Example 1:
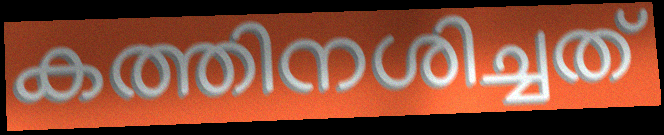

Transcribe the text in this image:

കത്തിനശിച്ചത്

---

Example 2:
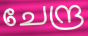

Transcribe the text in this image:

ചേന്ദ്ര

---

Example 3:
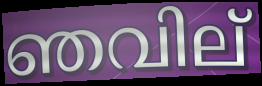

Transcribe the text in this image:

ഞവില്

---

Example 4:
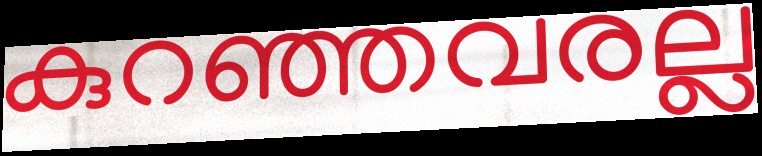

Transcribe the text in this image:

കുറഞ്ഞവരല്ല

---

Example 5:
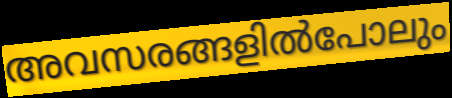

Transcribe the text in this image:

അവസരങ്ങളിൽപോലും